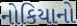
નોકિયાનો